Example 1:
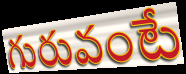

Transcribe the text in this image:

గురువంటే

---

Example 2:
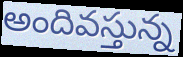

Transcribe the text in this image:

అందివస్తున్న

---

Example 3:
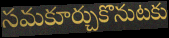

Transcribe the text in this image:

సమకూర్చుకొనుటకు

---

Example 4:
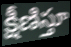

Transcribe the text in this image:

క్షీణిస్తూ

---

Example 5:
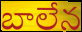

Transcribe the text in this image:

బాలేన